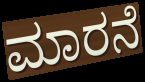
ಮಾರನೆ